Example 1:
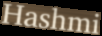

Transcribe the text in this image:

Hashmi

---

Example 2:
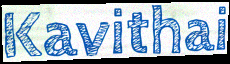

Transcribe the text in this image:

Kavithai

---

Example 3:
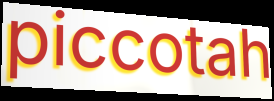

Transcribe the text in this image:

piccotah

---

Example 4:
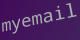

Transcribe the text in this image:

myemail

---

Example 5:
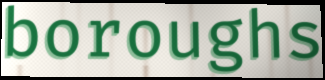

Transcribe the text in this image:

boroughs